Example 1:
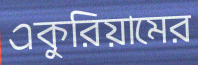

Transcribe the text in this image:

একুরিয়ামের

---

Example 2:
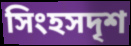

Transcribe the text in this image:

সিংহসদৃশ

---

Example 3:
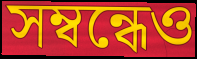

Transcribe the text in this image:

সম্বন্ধেও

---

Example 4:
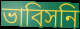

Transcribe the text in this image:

ভাবিসনি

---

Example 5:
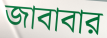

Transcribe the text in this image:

জাবাবার